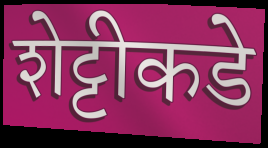
शेट्टीकडे